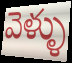
వెళ్ళు